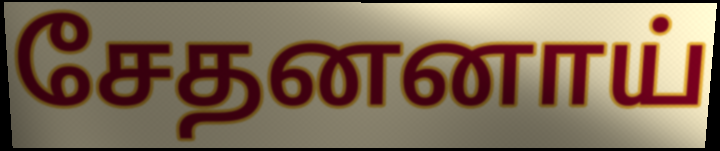
சேதனனாய்